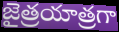
జైత్రయాత్రగా